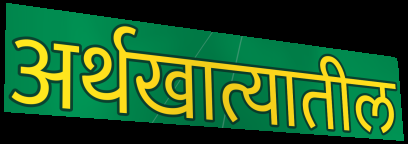
अर्थखात्यातील